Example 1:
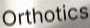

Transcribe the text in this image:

Orthotics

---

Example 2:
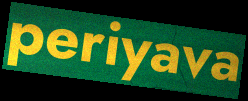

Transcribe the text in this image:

periyava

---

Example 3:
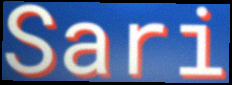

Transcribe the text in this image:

Sari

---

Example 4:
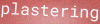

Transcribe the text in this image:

plastering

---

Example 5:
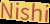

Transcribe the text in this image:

Nishi